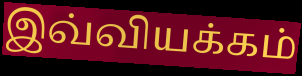
இவ்வியக்கம்